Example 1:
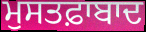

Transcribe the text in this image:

ਮੁਸਤਫ਼ਾਬਾਦ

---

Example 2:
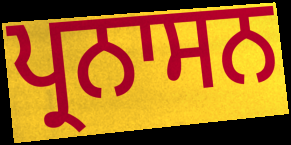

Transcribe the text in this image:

ਪ੍ਰਨਾਸਨ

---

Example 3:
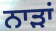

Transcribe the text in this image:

ਨਾੜਾਂ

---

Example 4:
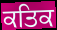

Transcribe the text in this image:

ਕਤਿਕ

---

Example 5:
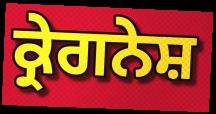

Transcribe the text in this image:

ਕ੍ਰੇਗਨੇਸ਼